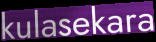
kulasekara